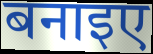
बनाइए